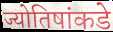
ज्योतिषांकडे